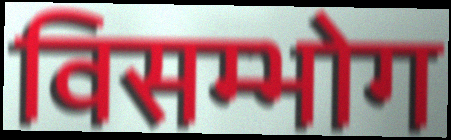
विसम्भोग